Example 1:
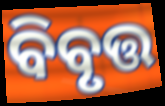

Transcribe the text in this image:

ବିବୃତ୍ତ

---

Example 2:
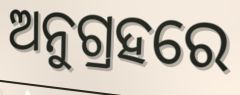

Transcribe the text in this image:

ଅନୁଗ୍ରହରେ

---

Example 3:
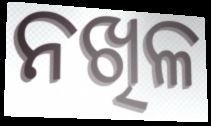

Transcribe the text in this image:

ନଖିଳ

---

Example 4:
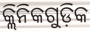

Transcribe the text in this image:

କ୍ଲିନିକଗୁଡ଼ିକ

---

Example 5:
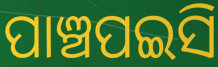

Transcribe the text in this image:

ପାଞ୍ଚପଇସି